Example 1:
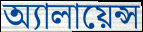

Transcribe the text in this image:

অ্যালায়েন্স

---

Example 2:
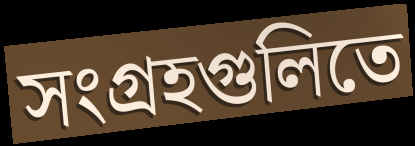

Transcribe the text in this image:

সংগ্রহগুলিতে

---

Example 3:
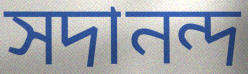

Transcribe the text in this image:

সদানন্দ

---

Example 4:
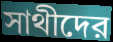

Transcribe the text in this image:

সাথীদের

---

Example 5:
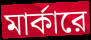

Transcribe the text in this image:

মার্কারে